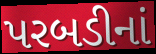
પરબડીનાં